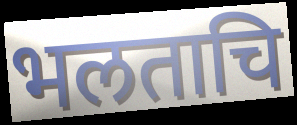
भलताचि